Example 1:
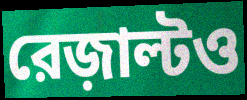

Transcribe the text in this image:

রেজ়াল্টও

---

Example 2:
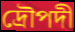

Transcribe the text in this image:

দ্রৌপদী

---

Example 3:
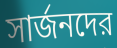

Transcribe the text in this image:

সার্জনদের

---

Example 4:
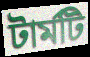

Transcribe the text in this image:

টার্মটি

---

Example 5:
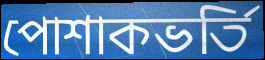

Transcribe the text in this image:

পোশাকভর্তি